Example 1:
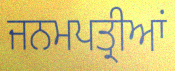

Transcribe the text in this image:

ਜਨਮਪਤ੍ਰੀਆਂ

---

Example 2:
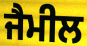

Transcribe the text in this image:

ਜੈਮੀਲ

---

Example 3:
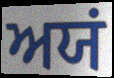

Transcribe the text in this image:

ਅਯਂ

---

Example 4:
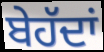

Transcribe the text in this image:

ਬੇਹੱਦਾਂ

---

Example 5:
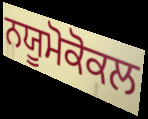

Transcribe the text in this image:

ਨਯੂਮੋਕੋਕਲ